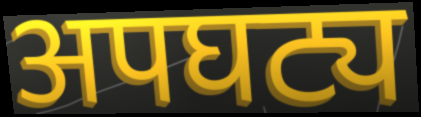
अपघट्य